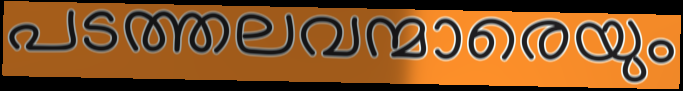
പടത്തലവന്മാരെയും